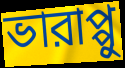
ভারাপ্পু